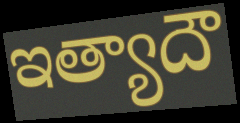
ఇత్యాదౌ